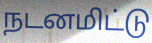
நடனமிட்டு